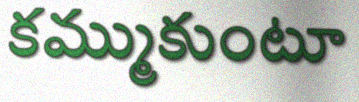
కమ్ముకుంటూ